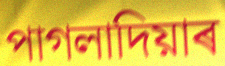
পাগলাদিয়াৰ